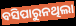
ବସିପାରୁନଥିଲା